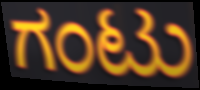
ಗಂಟು